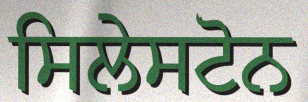
ਸਿਲੇਸਟੋਨ